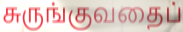
சுருங்குவதைப்